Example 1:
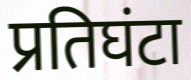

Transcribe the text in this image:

प्रतिघंटा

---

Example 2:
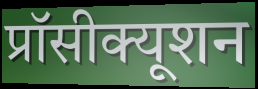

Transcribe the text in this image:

प्रॉसीक्यूशन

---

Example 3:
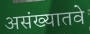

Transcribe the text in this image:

असंख्यातवे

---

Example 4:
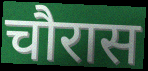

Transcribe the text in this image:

चौरास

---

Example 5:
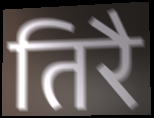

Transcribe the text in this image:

तिरै